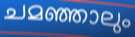
ചമഞ്ഞാലും